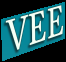
VEE